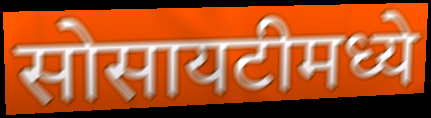
सोसायटीमध्ये